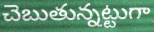
చెబుతున్నట్టుగా